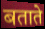
बताते